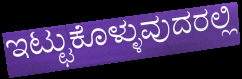
ಇಟ್ಟುಕೊಳ್ಳುವುದರಲ್ಲಿ